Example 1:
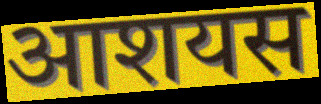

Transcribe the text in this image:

आशयस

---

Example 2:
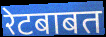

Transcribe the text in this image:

रेटबाबत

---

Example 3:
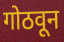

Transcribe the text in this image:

गोठवून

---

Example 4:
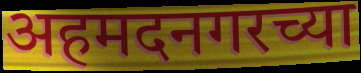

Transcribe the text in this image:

अहमदनगरच्या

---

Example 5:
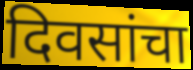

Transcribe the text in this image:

दिवसांचा